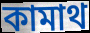
কামাথ